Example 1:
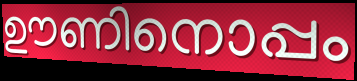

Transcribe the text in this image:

ഊണിനൊപ്പം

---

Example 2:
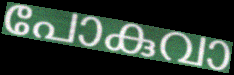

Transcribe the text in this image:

പോകുവാ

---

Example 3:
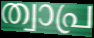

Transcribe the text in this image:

ത്വാപ്ര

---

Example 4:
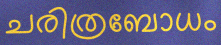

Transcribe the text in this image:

ചരിത്രബോധം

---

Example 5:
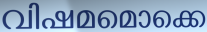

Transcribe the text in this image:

വിഷമമൊക്കെ